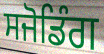
ਸਜੋਡਿੰਗ